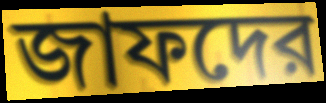
জাফদের